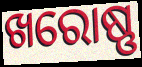
ଖରୋଷ୍ଣ